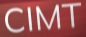
CIMT